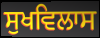
ਸੁਖਵਿਲਾਸ